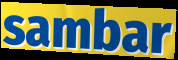
sambar